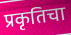
प्रकृतिचा